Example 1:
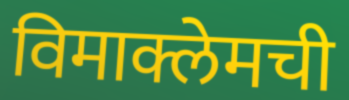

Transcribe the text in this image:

विमाक्लेमची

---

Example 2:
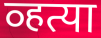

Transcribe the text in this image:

व्हत्या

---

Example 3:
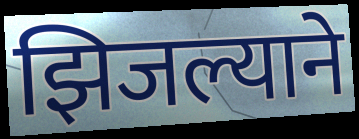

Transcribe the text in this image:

झिजल्याने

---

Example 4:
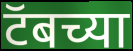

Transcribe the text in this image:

टॅबच्या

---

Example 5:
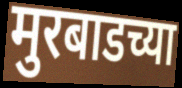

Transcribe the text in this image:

मुरबाडच्या